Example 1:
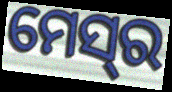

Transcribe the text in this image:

ମେସ୍‍ର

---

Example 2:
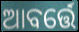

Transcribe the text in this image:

ଆବର୍ତ୍ତେ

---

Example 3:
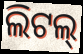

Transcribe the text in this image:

ଲିଟଲ୍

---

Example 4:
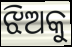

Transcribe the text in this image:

ଝିଅକୁ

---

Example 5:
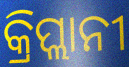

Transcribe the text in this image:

କ୍ରିପ୍ଲାନୀ